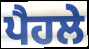
ਪੈਹਲੇ